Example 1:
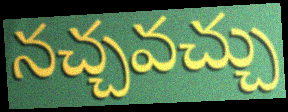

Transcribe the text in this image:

నచ్చవచ్చు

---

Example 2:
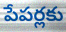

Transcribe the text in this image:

పేపర్లకు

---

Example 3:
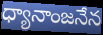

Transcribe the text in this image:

ధ్యానాంజనేన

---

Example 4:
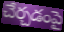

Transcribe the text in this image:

చేర్చడంపై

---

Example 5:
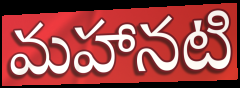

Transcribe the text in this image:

మహానటి